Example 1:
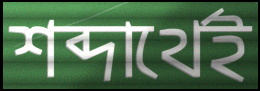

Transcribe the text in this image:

শব্দার্থেই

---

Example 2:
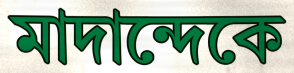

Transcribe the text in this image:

মাদান্দেকে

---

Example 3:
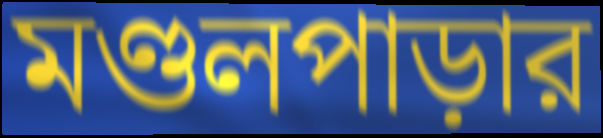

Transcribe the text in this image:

মণ্ডলপাড়ার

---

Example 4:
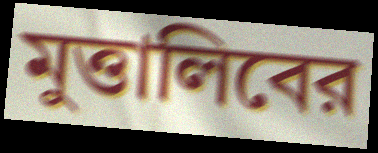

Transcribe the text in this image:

মুত্তালিবের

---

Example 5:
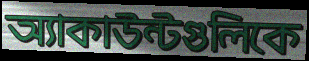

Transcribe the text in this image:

অ্যাকাউন্টগুলিকে